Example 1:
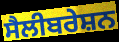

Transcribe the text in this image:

ਸੈਲੀਬਰੇਸ਼ਨ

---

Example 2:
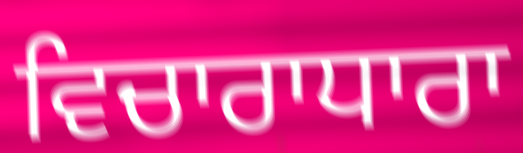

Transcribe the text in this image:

ਵਿਚਾਰਾਧਾਰਾ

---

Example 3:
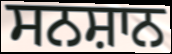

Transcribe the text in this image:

ਸਨਸ਼ਾਨ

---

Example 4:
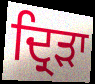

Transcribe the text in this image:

ਦ੍ਰਿੜਾ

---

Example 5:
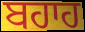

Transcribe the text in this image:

ਬਹਾਹ